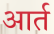
आर्त